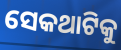
ସେକଥାଟିକୁ